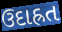
ઉદાહ્રત